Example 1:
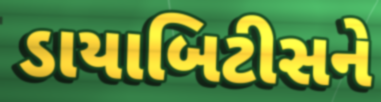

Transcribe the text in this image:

ડાયાબિટીસને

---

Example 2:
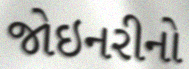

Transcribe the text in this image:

જોઇનરીનો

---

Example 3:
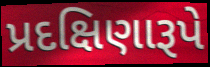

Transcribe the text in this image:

પ્રદક્ષિણારૂપે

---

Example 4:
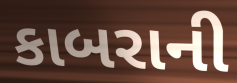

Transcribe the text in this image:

કાબરાની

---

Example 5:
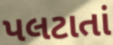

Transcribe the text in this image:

પલટાતાં